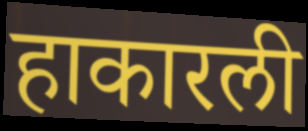
हाकारली